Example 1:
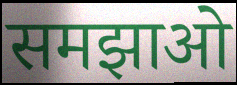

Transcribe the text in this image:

समझाओ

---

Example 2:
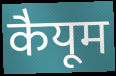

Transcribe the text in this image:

कैयूम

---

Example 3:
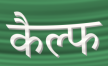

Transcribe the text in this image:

कैल्फ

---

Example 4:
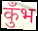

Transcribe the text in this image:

कुँभ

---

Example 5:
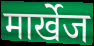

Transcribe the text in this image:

मार्खेज